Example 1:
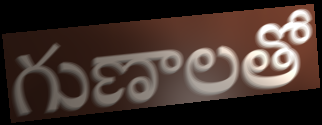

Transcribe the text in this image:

గుణాలతో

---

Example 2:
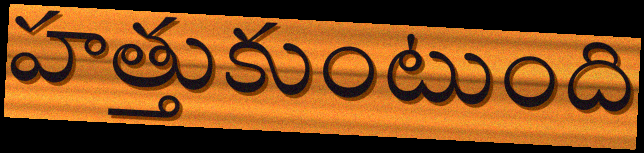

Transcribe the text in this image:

హత్తుకుంటుంది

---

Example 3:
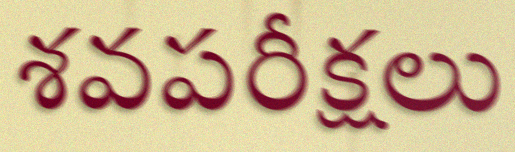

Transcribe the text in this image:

శవపరీక్షలు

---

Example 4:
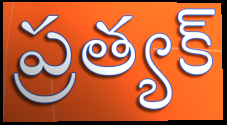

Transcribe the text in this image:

ప్రత్యక్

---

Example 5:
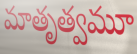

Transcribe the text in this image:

మాతృత్వమూ